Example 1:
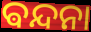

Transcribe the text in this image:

ଵନ୍ଦନା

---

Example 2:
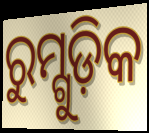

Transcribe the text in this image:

ରୁମ୍ଗୁଡ଼ିକ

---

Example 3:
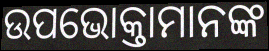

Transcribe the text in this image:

ଉପଭୋକ୍ତାମାନଙ୍କ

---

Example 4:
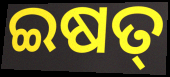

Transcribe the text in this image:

ଇଷତ୍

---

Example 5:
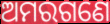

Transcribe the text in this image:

ଅମରଗଣେ